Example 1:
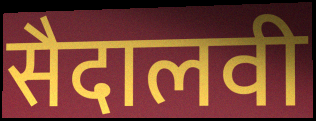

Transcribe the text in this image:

सैदालवी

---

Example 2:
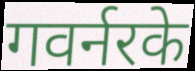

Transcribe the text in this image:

गवर्नरके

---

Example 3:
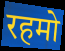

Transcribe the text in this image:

रहमो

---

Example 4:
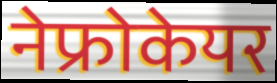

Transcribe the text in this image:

नेफ्रोकेयर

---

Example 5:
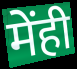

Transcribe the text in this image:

मेंही